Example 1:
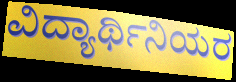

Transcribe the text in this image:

ವಿದ್ಯಾರ್ಥಿನಿಯರ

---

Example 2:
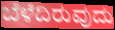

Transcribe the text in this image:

ಬೆಳೆದಿರುವುದು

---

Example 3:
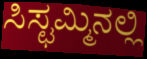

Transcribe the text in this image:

ಸಿಸ್ಟಮ್ಮಿನಲ್ಲಿ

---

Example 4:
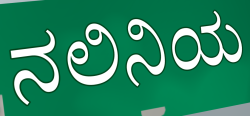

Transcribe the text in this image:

ನಲಿನಿಯ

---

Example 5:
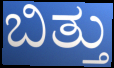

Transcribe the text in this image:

ಬಿತ್ತು